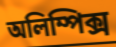
অলিম্পিক্স